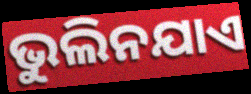
ଭୁଲିନଯାଏ